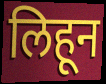
लिहून